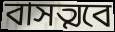
বাসত্মবে